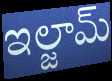
ఇల్జామ్